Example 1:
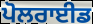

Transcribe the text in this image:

ਪੋਲਰਾਈਡ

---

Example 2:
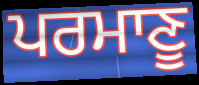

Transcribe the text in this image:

ਪਰਮਾਣੂ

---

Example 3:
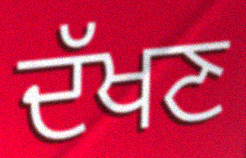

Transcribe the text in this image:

ਦੱਖਣ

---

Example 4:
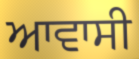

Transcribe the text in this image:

ਆਵਾਸੀ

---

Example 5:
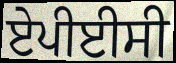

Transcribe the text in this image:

ਏਪੀਈਸੀ